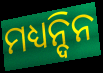
ମଧ୍ୟନ୍ଦିନ